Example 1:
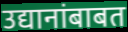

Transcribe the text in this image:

उद्यानांबाबत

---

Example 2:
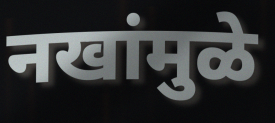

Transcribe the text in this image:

नखांमुळे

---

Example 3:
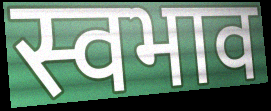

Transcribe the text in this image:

स्वभाव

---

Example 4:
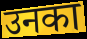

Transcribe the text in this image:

उनका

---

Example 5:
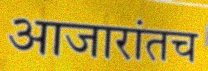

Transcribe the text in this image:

आजारांतच